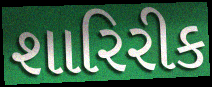
શારિરીક